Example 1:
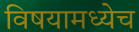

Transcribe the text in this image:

विषयामध्येच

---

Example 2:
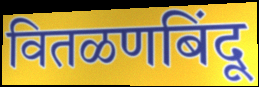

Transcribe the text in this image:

वितळणबिंदू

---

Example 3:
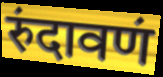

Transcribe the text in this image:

रुंदावणं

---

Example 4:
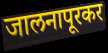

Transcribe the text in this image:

जालनापूरकर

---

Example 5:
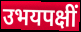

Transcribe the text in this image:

उभयपक्षीं